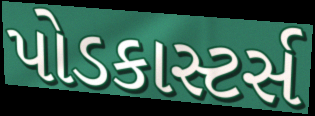
પોડકાસ્ટર્સ